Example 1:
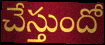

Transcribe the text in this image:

చేస్తుందో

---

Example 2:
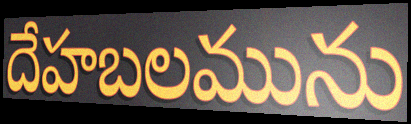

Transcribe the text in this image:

దేహబలమును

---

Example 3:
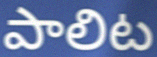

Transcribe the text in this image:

పాలిట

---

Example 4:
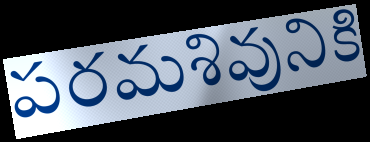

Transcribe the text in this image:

పరమశివునికి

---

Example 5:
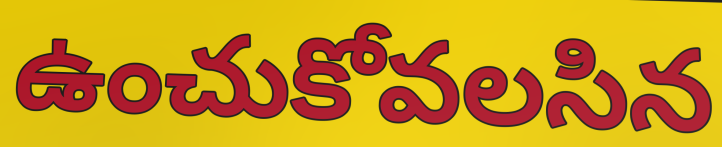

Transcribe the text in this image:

ఉంచుకోవలసిన